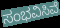
ಸಂಭವಿಸಿವೆ